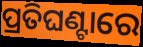
ପ୍ରତିଘଣ୍ଟାରେ